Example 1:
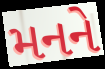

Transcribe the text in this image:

મનને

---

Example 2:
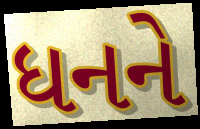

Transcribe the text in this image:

ધનને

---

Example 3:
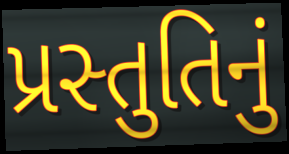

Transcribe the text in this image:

પ્રસ્તુતિનું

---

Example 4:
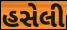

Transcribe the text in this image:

હસેલી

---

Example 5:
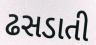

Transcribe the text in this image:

ઢસડાતી